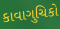
કાવાગુચિકો